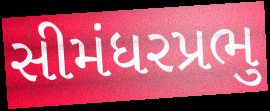
સીમંધરપ્રભુ